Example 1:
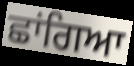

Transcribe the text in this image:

ਛਾਂਗਿਆ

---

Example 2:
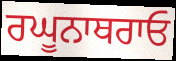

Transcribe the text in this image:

ਰਘੂਨਾਥਰਾਓ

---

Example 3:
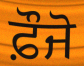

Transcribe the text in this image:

ਫ਼ੌਜੋ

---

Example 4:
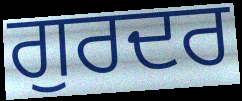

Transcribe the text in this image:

ਗੁਰਦਰ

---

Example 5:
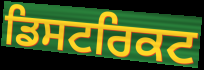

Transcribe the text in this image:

ਡਿਸਟਰਿਕਟ